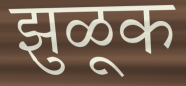
झुळूक